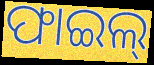
ଫାଇଲ୍